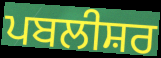
ਪਬਲੀਸ਼ਰ